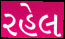
રહેલ